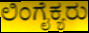
ಲಿಂಗೈಕ್ಯರು